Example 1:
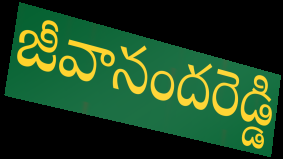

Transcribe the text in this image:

జీవానందరెడ్డి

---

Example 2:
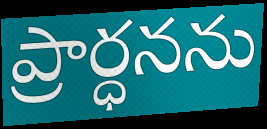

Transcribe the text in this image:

ప్రార్ధనను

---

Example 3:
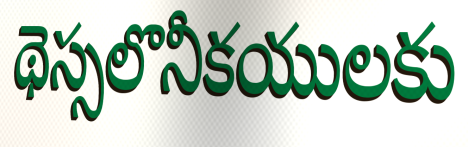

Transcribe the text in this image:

థెస్సలొనీకయులకు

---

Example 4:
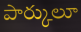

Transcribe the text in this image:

పార్కులూ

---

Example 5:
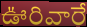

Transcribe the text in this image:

ఊరివారే